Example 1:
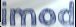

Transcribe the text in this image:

imod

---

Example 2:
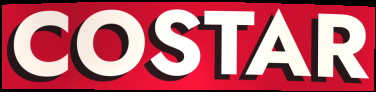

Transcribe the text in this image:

COSTAR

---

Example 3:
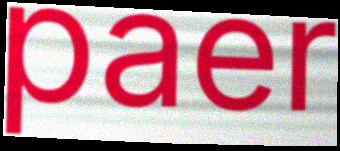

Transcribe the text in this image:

paer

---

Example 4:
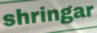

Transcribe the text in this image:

shringar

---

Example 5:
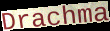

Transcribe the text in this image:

Drachma